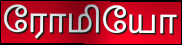
ரோமியோ